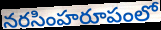
నరసింహరూపంలో